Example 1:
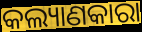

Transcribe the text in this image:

କଲ୍ୟାଣକାରା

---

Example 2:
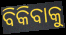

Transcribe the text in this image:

ବିକିବାକୁ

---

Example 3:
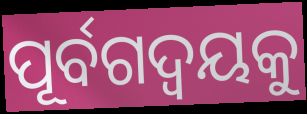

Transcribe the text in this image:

ପୂର୍ବଗଦ୍ଵୟକୁ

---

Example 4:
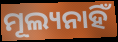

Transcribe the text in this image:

ମୂଲ୍ୟନାହିଁ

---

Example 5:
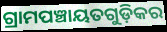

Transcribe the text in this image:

ଗ୍ରାମପଞ୍ଚାୟତଗୁଡ଼ିକର